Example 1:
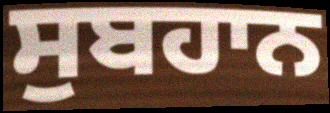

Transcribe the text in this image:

ਸੁਬਹਾਨ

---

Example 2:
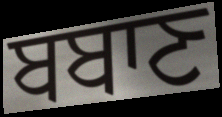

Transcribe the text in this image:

ਬਬਾਣ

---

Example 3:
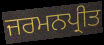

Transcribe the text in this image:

ਜਰਮਨਪ੍ਰੀਤ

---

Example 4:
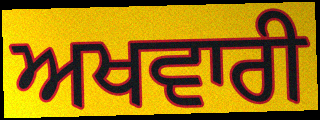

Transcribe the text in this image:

ਅਖਵਾਰੀ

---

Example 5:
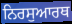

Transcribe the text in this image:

ਨਿਰਸੁਆਰਥ